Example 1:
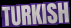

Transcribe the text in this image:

TURKISH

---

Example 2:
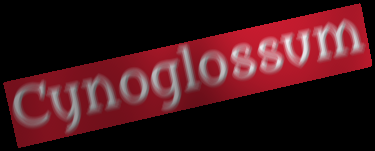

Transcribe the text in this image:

Cynoglossum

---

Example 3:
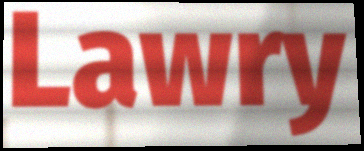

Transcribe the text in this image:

Lawry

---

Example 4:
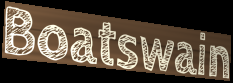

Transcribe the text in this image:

Boatswain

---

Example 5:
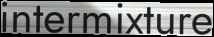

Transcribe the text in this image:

intermixture